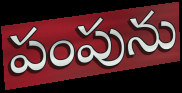
పంపును